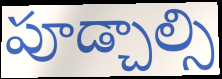
పూడ్చాల్సి